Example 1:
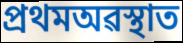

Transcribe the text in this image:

প্ৰথমঅৱস্থাত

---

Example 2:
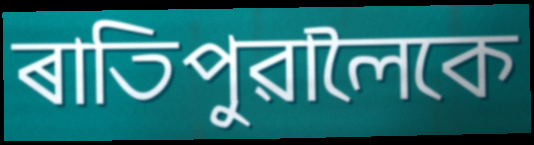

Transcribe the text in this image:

ৰাতিপুৱালৈকে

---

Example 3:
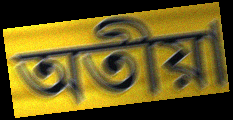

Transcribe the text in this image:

অতীয়া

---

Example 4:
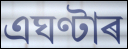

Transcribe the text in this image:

এঘণ্টাৰ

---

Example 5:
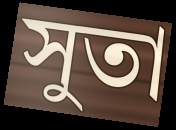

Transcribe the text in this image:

সুতা